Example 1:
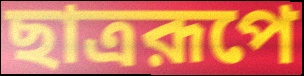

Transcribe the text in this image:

ছাত্ররূপে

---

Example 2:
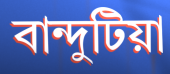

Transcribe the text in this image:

বান্দুটিয়া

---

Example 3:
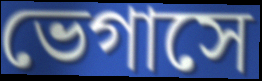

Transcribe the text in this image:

ভেগাসে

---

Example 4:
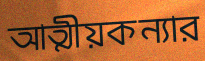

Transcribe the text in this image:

আত্মীয়কন্যার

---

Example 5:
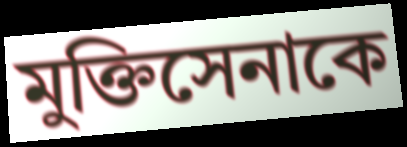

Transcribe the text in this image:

মুক্তিসেনাকে